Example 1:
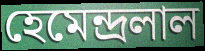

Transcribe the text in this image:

হেমেন্দ্রলাল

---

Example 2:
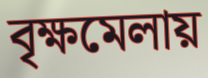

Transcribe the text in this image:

বৃক্ষমেলায়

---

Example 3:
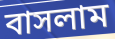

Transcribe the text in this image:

বাসলাম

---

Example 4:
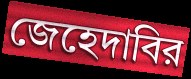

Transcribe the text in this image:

জেহেদাবির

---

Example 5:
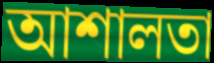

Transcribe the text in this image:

আশালতা